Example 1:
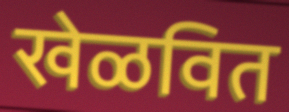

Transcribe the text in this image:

खेळवित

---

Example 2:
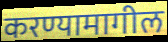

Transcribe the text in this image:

करण्यामागील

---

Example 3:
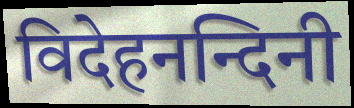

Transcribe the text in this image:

विदेहनन्दिनी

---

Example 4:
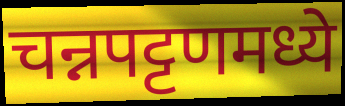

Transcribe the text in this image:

चन्नपट्टणमध्ये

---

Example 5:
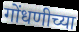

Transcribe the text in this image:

गोंधणीच्या